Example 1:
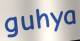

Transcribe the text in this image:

guhya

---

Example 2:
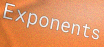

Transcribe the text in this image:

Exponents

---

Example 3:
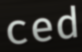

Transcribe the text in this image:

ced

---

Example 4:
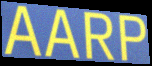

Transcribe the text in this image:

AARP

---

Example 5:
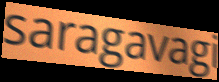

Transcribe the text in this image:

saragavagi